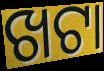
ଖଟା